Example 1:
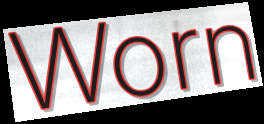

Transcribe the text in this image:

Worn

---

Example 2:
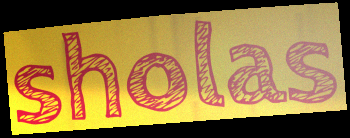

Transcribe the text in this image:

sholas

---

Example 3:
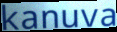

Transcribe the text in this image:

kanuva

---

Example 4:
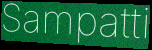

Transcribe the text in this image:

Sampatti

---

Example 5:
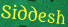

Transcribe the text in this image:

Siddesh